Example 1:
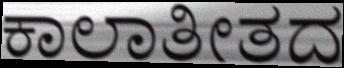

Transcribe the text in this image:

ಕಾಲಾತೀತದ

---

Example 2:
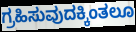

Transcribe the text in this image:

ಗ್ರಹಿಸುವುದಕ್ಕಿಂತಲೂ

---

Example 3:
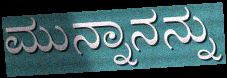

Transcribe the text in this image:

ಮುನ್ನಾನನ್ನು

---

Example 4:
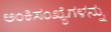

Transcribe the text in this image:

ಅಂಕಿಸಂಖ್ಯೆಗಳನ್ನು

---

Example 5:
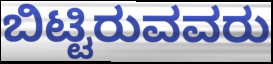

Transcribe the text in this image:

ಬಿಟ್ಟಿರುವವರು